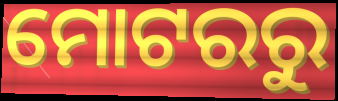
ମୋଟରରୁ